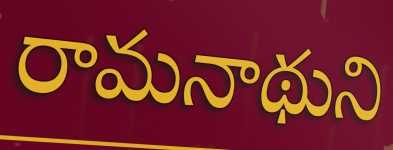
రామనాథుని